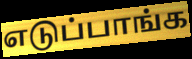
எடுப்பாங்க